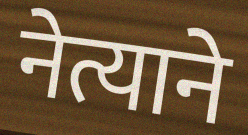
नेत्याने